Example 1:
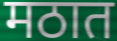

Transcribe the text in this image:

मठात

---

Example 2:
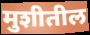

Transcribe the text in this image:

मुशीतील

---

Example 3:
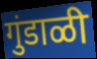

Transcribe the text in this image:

गुंडाळी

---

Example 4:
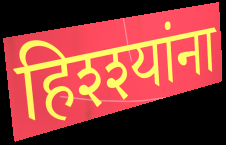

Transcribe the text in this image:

हिश्श्यांना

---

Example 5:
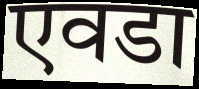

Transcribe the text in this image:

एवडा